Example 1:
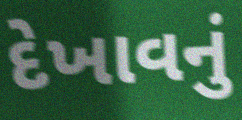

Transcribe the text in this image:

દેખાવનું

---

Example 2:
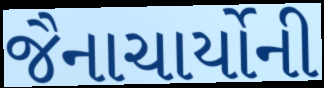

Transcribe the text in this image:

જૈનાચાર્યોની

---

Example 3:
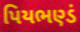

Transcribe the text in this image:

પિયભણ્ડં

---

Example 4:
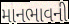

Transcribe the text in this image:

માનભાવની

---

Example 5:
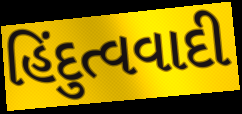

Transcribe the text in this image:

હિંદુત્વવાદી